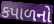
કપાળનો